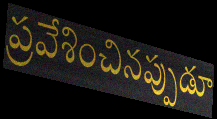
ప్రవేశించినప్పుడూ